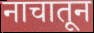
नाचातून